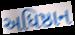
અધિષ્ઠાન